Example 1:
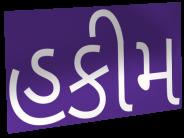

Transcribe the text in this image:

હકીમ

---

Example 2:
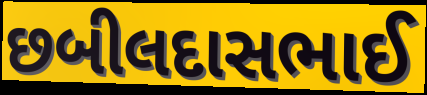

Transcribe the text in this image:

છબીલદાસભાઈ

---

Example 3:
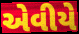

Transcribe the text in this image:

એવીયે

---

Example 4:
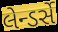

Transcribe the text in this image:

લેન્ડર્સે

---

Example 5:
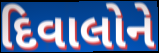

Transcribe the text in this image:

દિવાલોને